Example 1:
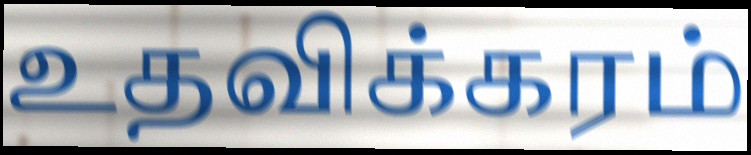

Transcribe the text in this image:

உதவிக்கரம்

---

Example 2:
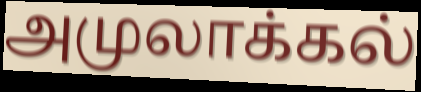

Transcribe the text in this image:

அமுலாக்கல்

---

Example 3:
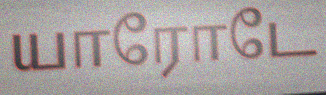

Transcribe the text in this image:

யாரோடே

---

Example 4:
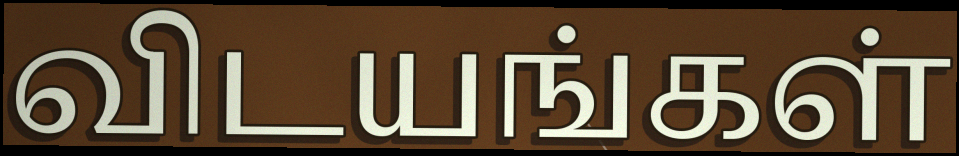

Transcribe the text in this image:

விடயங்கள்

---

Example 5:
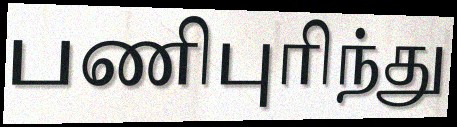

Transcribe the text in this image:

பணிபுரிந்து